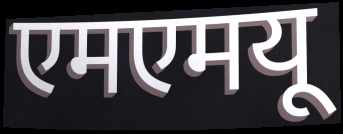
एमएमयू